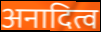
अनादित्व